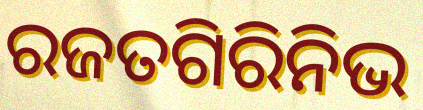
ରଜତଗିରିନିଭ